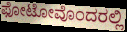
ಫೋಟೋವೊಂದರಲ್ಲಿ